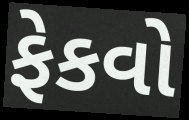
ફેકવો